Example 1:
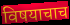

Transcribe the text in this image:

विषयाचाच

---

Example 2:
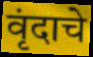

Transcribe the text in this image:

वृंदाचे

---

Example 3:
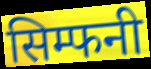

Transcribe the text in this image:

सिम्फनी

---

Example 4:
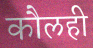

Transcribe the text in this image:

कौलही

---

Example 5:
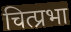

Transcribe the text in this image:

चित्प्रभा